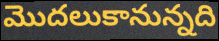
మొదలుకానున్నది